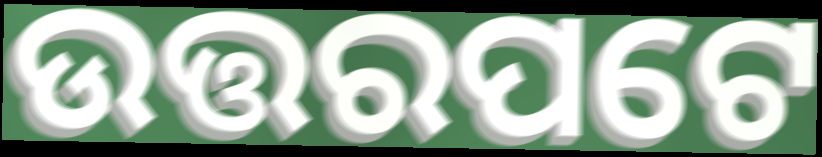
ଉତ୍ତରପଟେ